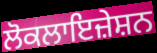
ਲੋਕਲਾਇਜ਼ੇਸ਼ਨ